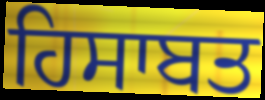
ਹਿਸਾਬਤ